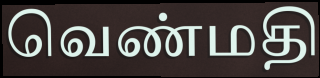
வெண்மதி